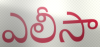
ఎలీసా